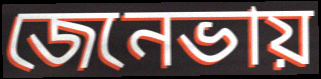
জেনেভায়